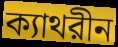
ক্যাথরীন